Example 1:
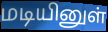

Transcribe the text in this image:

மடியினுள்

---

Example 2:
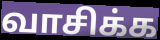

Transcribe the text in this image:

வாசிக்க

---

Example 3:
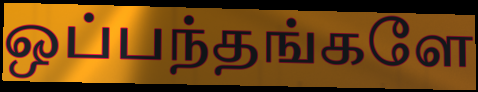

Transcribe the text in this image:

ஒப்பந்தங்களே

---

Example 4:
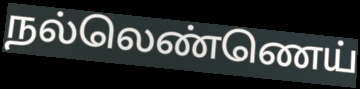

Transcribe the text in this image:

நல்லெண்ணெய்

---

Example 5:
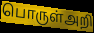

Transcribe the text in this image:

பொருள்அறி